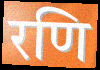
रणि